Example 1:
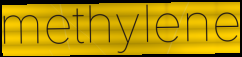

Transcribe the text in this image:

methylene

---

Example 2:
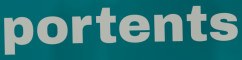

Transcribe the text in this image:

portents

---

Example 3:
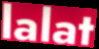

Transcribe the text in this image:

lalat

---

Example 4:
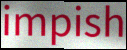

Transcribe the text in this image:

impish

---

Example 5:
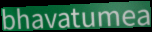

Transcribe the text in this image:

bhavatumea